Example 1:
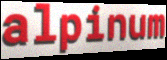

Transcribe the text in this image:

alpinum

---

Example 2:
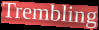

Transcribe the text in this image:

Trembling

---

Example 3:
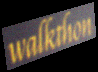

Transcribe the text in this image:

walkthon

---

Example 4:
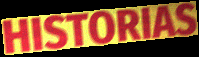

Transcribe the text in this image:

HISTORIAS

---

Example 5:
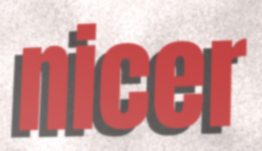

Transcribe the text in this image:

nicer